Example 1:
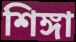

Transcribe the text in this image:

শিঙ্গা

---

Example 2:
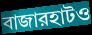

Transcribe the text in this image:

বাজারহাটও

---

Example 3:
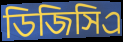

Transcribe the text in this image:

ডিজিসিএ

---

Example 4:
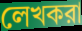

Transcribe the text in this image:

লেখকরা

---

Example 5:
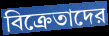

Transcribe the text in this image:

বিক্রেতাদের